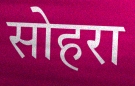
सोहरा